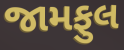
જામફુલ